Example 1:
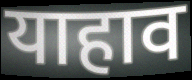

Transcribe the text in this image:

याहाव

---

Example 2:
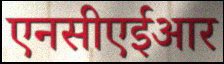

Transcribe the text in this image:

एनसीएईआर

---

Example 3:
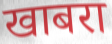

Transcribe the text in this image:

खाबरा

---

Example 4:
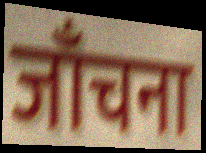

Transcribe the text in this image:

जाँचना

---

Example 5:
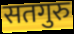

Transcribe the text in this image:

सतगुरु